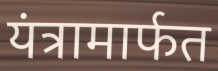
यंत्रामार्फत